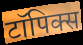
टॉपिक्स